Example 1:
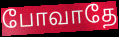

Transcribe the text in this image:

போவாதே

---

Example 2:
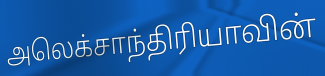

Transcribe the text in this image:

அலெக்சாந்திரியாவின்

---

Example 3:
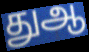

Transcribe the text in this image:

துஆ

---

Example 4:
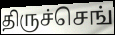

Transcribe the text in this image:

திருச்செங்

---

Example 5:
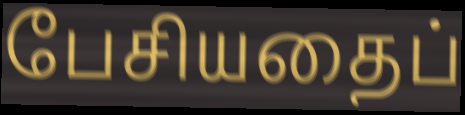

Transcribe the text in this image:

பேசியதைப்